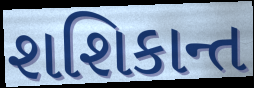
શશિકાન્ત